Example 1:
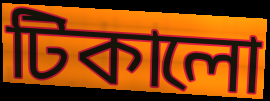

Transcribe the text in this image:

টিকালো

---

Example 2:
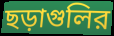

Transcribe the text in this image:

ছড়াগুলির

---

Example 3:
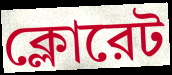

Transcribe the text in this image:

ক্লোরেট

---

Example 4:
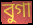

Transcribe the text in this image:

বুগা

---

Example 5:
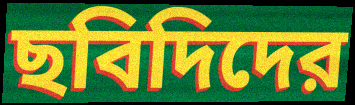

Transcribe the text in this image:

ছবিদিদের